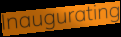
Inaugurating